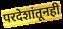
परदेशांतूनही